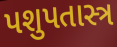
પશુપતાસ્ત્ર